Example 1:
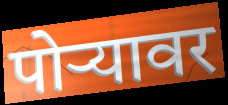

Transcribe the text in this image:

पोर्‍यावर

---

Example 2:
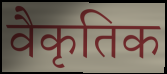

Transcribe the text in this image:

वैकृतिक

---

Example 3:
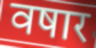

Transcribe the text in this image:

वषार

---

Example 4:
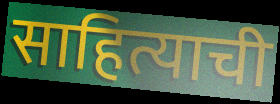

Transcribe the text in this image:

साहित्याची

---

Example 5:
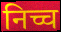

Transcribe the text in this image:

निच्च